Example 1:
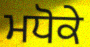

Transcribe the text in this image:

ਮਧੋਕੇ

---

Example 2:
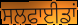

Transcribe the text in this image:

ਸਲਫਾਈਡਾਂ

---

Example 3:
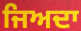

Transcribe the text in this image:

ਜਿਅਦਾ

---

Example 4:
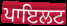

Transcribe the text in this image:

ਪਾਇਲਟ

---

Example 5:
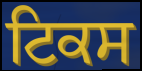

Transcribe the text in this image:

ਟਿਕਸ